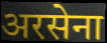
अरसेना